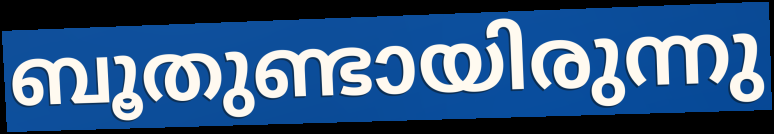
ബൂതുണ്ടായിരുന്നു